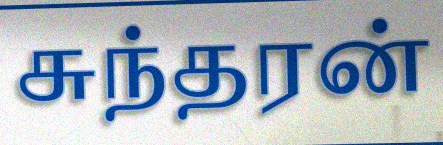
சுந்தரன்